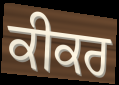
ਕੀਕਰ